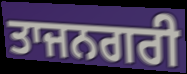
ਤਾਜਨਗਰੀ